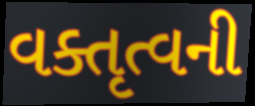
વક્તૃત્વની